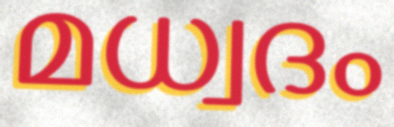
മധ്വദം